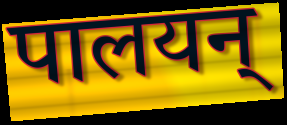
पालयन्